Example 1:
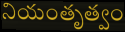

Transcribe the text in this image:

నియంతృత్వం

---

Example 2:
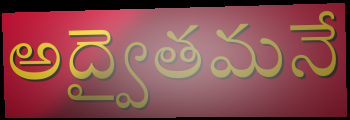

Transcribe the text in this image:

అద్వైతమనే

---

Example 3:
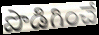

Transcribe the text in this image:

పొడిగించే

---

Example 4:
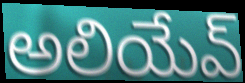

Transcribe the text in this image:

అలియేవ్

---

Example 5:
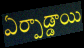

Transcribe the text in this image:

ఏర్పాడ్డాయి